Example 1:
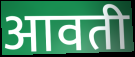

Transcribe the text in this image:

आवती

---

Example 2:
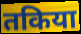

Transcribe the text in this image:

तकिया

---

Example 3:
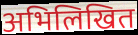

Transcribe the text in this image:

अभिलिखित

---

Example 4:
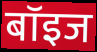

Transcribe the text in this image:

बॉइज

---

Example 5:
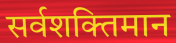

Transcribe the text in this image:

सर्वशक्‍तिमान